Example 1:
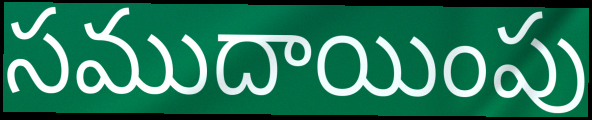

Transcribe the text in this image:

సముదాయింపు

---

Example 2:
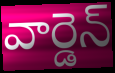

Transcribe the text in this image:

వార్డెన్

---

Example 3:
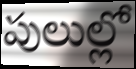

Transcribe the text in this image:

పులుల్లో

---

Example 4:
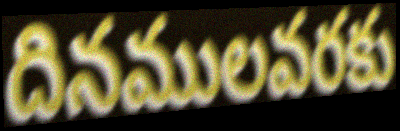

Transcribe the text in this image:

దినములవరకు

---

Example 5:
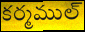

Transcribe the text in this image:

కర్మముల్